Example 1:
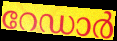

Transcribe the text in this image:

റേഡാർ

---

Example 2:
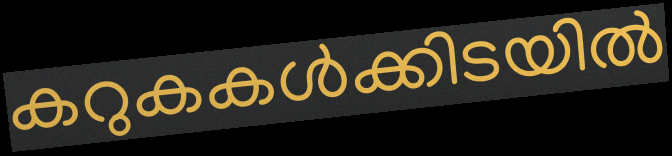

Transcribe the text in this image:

കറുകകൾക്കിടയിൽ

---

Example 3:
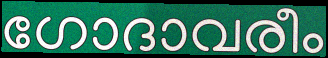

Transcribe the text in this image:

ഗോദാവരീം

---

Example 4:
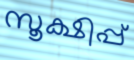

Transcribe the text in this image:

സൂക്ഷിപ്പ്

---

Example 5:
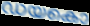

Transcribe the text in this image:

ഡയകൊ